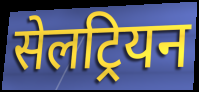
सेलट्रियन